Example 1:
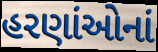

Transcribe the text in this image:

હરણાંઓનાં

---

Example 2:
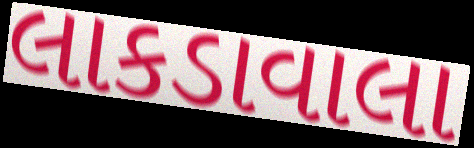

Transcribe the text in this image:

લાકડાવાલા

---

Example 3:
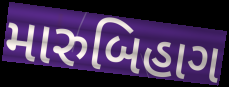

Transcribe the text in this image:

મારુબિહાગ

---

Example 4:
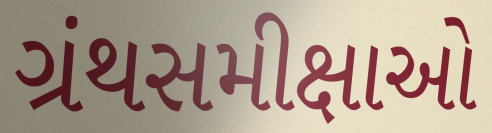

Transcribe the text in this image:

ગ્રંથસમીક્ષાઓ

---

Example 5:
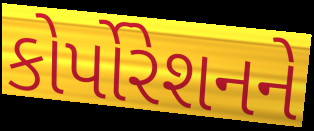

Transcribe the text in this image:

કોર્પોરેશનને